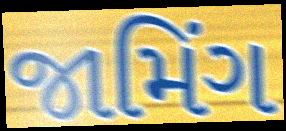
જામિંગ